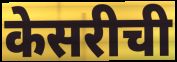
केसरीची